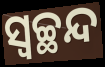
ସ୍ୱଚ୍ଛନ୍ଦ